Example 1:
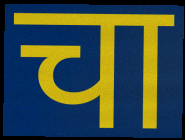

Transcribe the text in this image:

चा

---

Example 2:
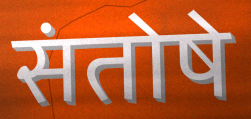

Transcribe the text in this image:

संतोषे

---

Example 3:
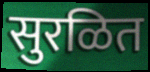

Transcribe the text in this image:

सुरळित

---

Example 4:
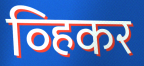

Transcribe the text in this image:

व्हिकर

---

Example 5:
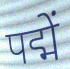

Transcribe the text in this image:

पद्में